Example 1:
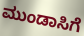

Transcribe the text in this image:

ಮುಂಡಾಸಿಗೆ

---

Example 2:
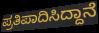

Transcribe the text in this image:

ಪ್ರತಿಪಾದಿಸಿದ್ದಾನೆ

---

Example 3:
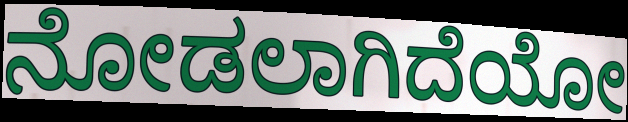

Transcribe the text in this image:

ನೋಡಲಾಗಿದೆಯೋ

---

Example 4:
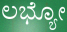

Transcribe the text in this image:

ಲಭ್ಯೋ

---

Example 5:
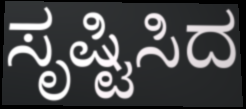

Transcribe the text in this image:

ಸೃಷ್ಟಿಸಿದ